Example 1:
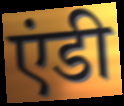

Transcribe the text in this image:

एंडी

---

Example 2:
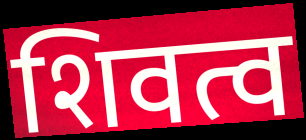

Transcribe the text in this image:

शिवत्व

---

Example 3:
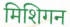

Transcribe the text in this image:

मिशिगन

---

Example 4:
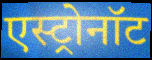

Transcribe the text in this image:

एस्‍ट्रोनॉट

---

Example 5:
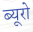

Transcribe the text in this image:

ब्यूरो